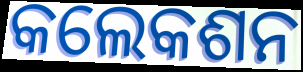
କଲେକଶନ